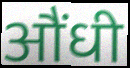
औंधी